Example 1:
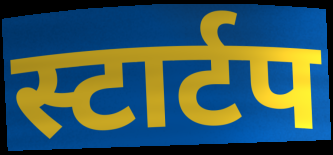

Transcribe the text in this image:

स्टार्टप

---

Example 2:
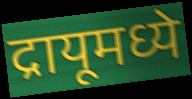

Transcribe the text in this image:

द्रायूमध्ये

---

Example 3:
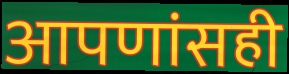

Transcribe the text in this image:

आपणांसही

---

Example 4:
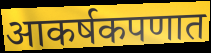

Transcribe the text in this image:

आकर्षकपणात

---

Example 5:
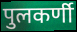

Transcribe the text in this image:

पुलकर्णी